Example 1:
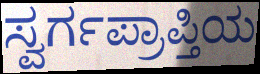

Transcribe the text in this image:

ಸ್ವರ್ಗಪ್ರಾಪ್ತಿಯ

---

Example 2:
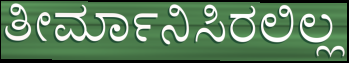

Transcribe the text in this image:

ತೀರ್ಮಾನಿಸಿರಲಿಲ್ಲ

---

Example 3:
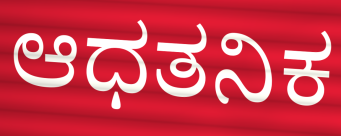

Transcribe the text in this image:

ಆಧತನಿಕ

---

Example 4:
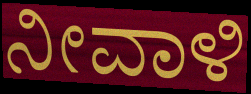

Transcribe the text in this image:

ನೀವಾಳಿ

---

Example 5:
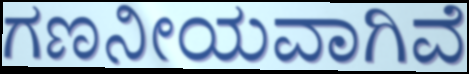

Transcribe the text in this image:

ಗಣನೀಯವಾಗಿವೆ